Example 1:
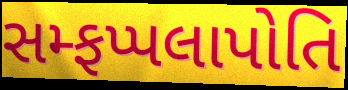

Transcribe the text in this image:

સમ્ફપ્પલાપોતિ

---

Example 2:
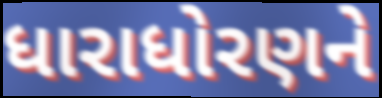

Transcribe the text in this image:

ધારાધોરણને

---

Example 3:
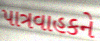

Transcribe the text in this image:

પાત્રવાહકને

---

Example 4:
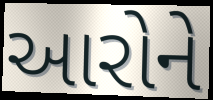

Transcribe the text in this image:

આરોને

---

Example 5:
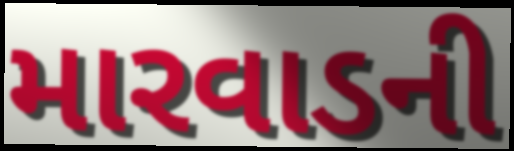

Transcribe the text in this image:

મારવાડની